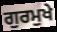
ਗੁਰਮੁਖੇ